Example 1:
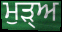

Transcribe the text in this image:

ਮੁਡ਼੍ਅ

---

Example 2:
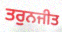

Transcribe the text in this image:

ਤਰੁਨਜੀਤ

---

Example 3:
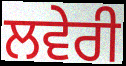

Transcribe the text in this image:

ਲਵੇਰੀ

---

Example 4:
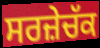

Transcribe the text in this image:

ਸਰਜ਼ੇਚੱਕ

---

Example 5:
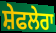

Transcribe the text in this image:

ਸ਼ੇਫਲੇਰਾ